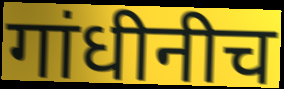
गांधीनीच